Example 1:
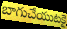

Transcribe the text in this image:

బాగుచేయుటకై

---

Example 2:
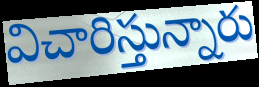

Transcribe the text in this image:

విచారిస్తున్నారు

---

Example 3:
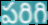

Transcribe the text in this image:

పరిగి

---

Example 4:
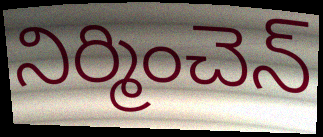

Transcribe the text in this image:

నిర్మించెన్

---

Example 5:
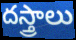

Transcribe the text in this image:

దస్త్రాలు